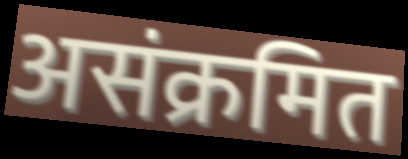
असंक्रमित